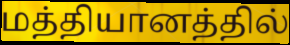
மத்தியானத்தில்